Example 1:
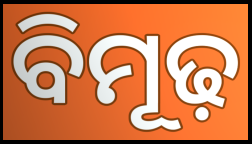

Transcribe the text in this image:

ବିମୂଢ଼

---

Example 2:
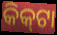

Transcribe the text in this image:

କିକ୍‍ଟା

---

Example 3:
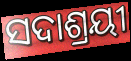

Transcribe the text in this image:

ସଦାଶ୍ରୟୀ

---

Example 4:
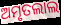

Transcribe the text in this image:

ଅମୃତଲାଲ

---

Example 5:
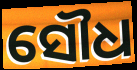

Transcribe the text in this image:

ସୌଧ